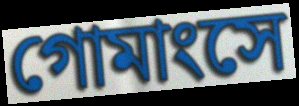
গোমাংসে